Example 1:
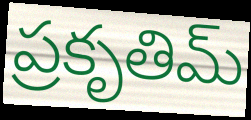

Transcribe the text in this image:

ప్రకృతిమ్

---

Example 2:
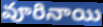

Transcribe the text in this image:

వూరినాయి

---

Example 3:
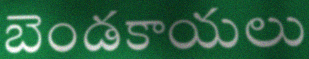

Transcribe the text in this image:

బెండకాయలు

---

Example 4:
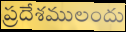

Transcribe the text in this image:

ప్రదేశములందు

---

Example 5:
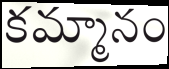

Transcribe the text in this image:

కమ్మానం